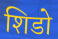
शिडो